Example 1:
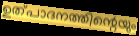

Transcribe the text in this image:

ഉത്പാദനത്തിന്റെയും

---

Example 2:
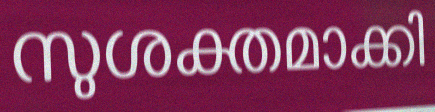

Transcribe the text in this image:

സുശക്തമാക്കി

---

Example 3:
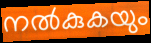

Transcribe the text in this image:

നൽകുകയും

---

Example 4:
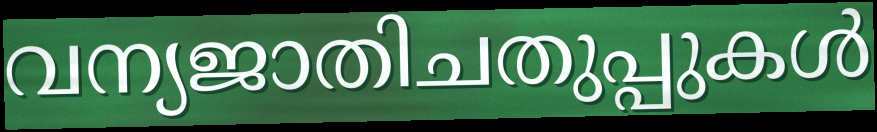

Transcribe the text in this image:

വന്യജാതിചതുപ്പുകൾ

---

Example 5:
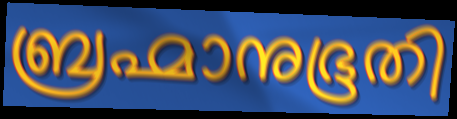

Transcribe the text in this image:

ബ്രഹ്മാനുഭൂതി